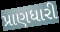
પ્રાણધારી